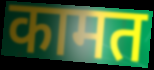
कामत